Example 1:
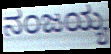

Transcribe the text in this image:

ನಂಜಯ್ಯ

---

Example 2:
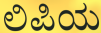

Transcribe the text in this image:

ಲಿಪಿಯ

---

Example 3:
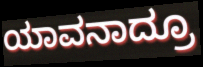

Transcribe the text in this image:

ಯಾವನಾದ್ರೂ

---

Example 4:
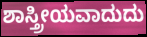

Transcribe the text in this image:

ಶಾಸ್ತ್ರೀಯವಾದುದು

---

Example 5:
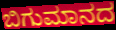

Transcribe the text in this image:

ಬಿಗುಮಾನದ